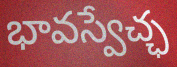
భావస్వేచ్ఛ